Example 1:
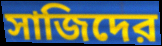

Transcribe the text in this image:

সাজিদের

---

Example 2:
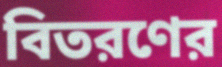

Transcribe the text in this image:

বিতরণের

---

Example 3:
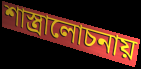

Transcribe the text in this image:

শাস্ত্রালোচনায়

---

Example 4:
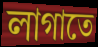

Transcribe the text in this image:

লাগাতে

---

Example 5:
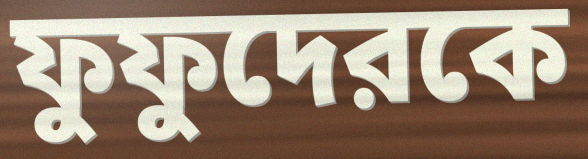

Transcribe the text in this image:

ফুফুদেরকে